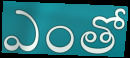
ఎంతో